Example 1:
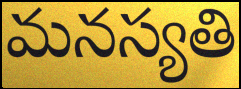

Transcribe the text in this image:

మనస్యతి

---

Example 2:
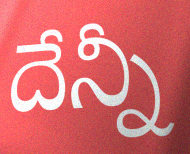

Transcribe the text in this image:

దేన్నీ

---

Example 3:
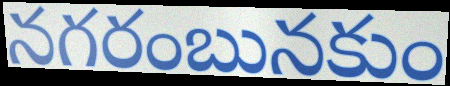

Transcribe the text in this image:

నగరంబునకుం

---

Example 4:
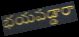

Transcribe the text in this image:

భయపడ్డారా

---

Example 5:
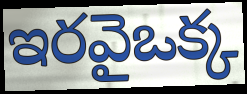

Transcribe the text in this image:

ఇరవైఒక్క